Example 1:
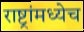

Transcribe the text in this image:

राष्ट्रांमध्येच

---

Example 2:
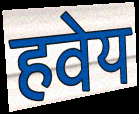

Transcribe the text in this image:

हवेय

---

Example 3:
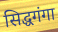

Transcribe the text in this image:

सिद्धगंगा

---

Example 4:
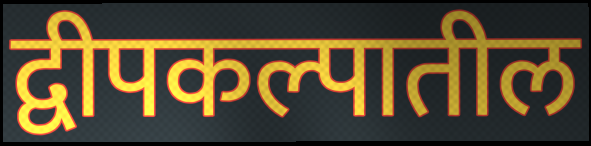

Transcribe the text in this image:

द्वीपकल्पातील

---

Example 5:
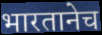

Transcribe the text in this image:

भारतानेच